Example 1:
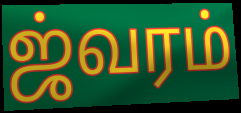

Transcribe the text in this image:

ஜ்வரம்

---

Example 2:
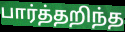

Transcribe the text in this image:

பார்த்தறிந்த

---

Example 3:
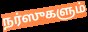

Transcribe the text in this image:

நர்ஸுகளும்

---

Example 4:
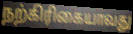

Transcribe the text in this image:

நற்கிரிகையாவது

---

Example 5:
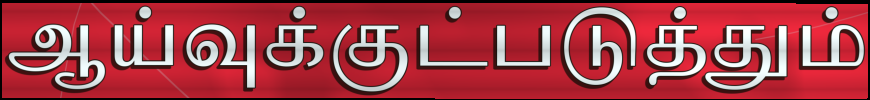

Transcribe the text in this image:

ஆய்வுக்குட்படுத்தும்